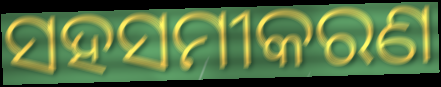
ସହସମୀକରଣ